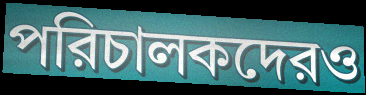
পরিচালকদেরও